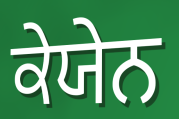
ਕੇਯੇਨ